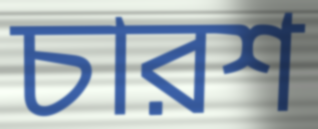
চারশ